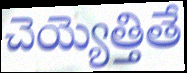
చెయ్యెత్తితే